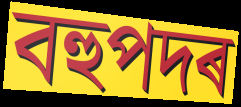
বহুপদৰ